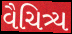
વૈચિત્ર્ય